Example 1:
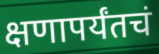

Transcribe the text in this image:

क्षणापर्यंतचं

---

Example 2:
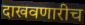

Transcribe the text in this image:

दाखवणारीच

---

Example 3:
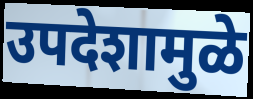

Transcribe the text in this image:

उपदेशामुळे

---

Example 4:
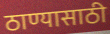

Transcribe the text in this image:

ठाण्यासाठी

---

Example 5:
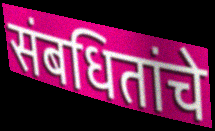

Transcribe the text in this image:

संबधितांचे